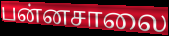
பன்னசாலை